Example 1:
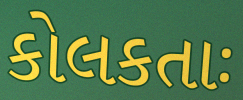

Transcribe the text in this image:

કોલકતાઃ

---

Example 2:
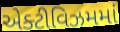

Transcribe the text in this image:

એક્ટીવિઝમમાં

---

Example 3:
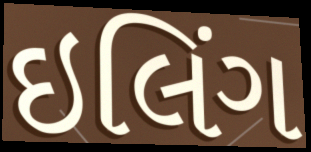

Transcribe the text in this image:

ઇલિંગ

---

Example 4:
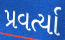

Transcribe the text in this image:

પ્રવર્ત્યા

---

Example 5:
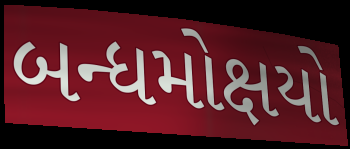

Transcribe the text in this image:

બન્ધમોક્ષયો